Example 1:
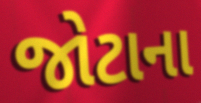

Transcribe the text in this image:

જોટાના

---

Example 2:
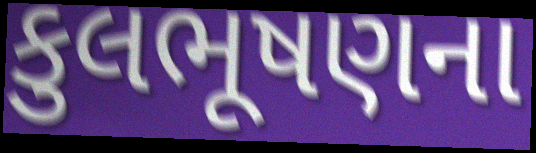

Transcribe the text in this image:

કુલભૂષણના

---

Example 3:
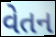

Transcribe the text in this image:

વેતન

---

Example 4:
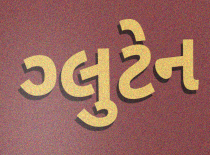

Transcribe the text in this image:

ગ્લુટેન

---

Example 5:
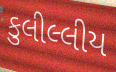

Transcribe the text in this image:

કુલીલ્લીય